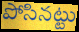
పోసినట్టు